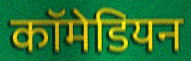
कॉमेडियन